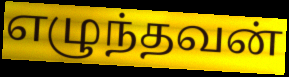
எழுந்தவன்